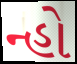
ન્હો